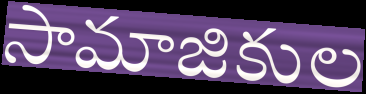
సామాజికుల